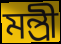
মন্ত্ৰী